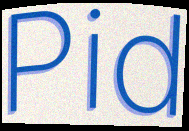
Pid